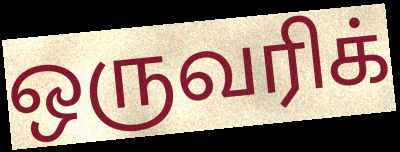
ஒருவரிக்